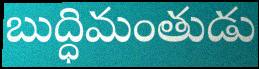
బుద్ధిమంతుడు